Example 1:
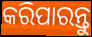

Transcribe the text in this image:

କରିପାରନ୍ତୁ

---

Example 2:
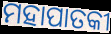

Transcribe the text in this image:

ମହାପାତକୀ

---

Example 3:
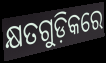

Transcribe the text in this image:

କ୍ଷତଗୁଡ଼ିକରେ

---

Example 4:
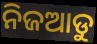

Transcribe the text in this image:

ନିଜଆଡୁ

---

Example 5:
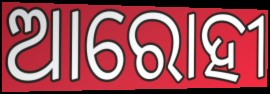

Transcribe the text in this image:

ଆରୋହୀ